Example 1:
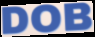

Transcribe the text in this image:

DOB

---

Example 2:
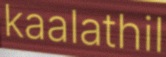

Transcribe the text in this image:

kaalathil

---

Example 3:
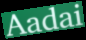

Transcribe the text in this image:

Aadai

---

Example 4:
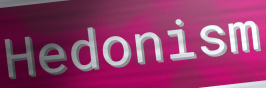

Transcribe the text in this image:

Hedonism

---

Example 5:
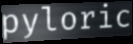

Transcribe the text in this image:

pyloric